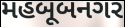
મહબૂબનગર